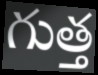
గుత్త